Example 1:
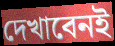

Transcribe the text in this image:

দেখাবেনই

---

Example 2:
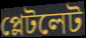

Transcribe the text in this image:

প্লেটলেট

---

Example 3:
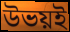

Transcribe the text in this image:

উভয়ই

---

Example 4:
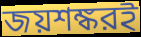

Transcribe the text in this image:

জয়শঙ্করই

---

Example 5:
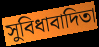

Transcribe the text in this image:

সুবিধাবাদিতা